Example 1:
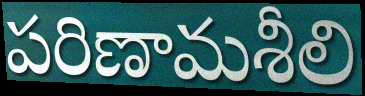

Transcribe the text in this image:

పరిణామశీలి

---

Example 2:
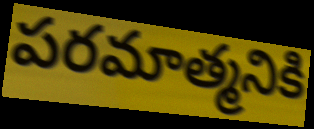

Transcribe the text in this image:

పరమాత్మనికి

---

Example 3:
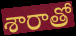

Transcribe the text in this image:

శారాతో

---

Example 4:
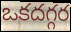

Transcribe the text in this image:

ఒకదగ్గర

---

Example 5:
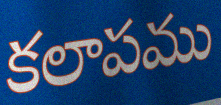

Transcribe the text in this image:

కలాపము